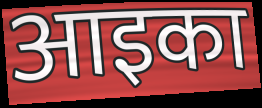
आइका